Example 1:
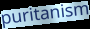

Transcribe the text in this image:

puritanism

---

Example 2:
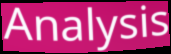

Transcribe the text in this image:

Analysis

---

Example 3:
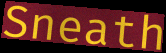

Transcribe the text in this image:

Sneath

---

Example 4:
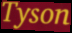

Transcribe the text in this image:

Tyson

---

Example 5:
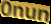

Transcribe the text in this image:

Onun